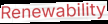
Renewability